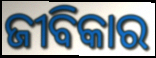
ଜୀବିକାର